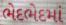
ભેદભેદમાં